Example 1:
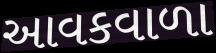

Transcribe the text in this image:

આવકવાળા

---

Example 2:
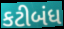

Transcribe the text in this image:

કટીબંધ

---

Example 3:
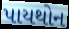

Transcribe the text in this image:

પાયથોન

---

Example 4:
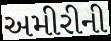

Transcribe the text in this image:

અમીરીની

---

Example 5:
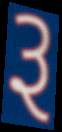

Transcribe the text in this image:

રૂ